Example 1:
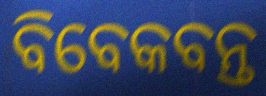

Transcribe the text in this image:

ବିବେକବନ୍ତ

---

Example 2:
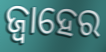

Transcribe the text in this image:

ଜ୍ୱାହେର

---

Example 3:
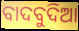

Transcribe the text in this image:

ବାଦବୁଦିଆ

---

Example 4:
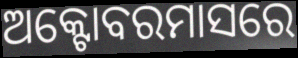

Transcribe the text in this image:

ଅକ୍ଟୋବରମାସରେ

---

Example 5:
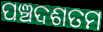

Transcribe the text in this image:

ପଞ୍ଚଦଶତମ